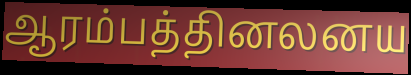
ஆரம்பத்தினலனய